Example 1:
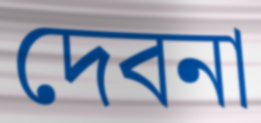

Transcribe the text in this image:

দেবনা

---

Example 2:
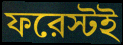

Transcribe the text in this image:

ফরেস্টই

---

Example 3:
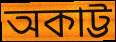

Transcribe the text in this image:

অকাট্ট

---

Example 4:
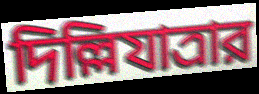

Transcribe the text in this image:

দিল্লিযাত্রার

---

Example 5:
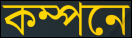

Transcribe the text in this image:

কম্পনে